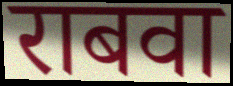
राबवा